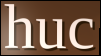
huc